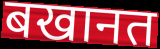
बखानत